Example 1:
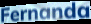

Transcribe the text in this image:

Fernanda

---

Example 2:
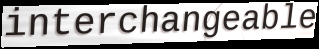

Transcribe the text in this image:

interchangeable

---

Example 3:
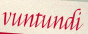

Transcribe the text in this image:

vuntundi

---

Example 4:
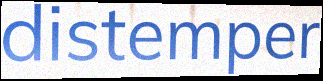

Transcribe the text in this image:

distemper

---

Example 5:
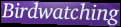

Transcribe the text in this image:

Birdwatching